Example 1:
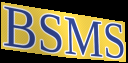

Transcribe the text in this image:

BSMS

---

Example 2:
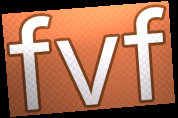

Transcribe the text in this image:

fvf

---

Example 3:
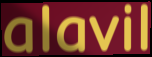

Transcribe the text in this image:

alavil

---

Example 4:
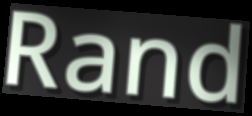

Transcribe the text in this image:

Rand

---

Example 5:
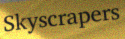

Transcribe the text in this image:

Skyscrapers